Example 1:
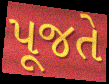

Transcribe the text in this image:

પૂજતે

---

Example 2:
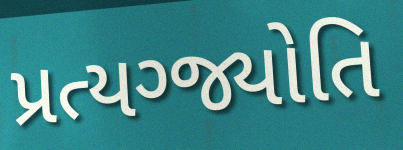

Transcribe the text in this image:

પ્રત્યગ્જ્યોતિ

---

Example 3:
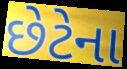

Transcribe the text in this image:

છેટેના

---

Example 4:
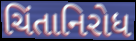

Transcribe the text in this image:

ચિંતાનિરોધ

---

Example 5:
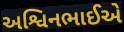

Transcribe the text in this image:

અશ્વિનભાઈએ